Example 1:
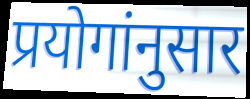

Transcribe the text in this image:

प्रयोगांनुसार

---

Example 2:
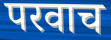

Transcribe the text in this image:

परवाच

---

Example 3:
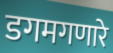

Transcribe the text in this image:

डगमगणारे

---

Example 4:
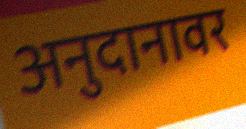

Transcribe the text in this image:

अनुदानावर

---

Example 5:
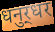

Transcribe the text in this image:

धनुर्धर